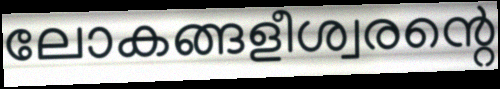
ലോകങ്ങളീശ്വരന്റെ